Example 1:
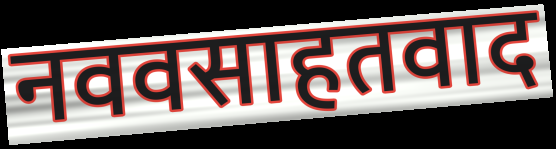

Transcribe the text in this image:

नववसाहतवाद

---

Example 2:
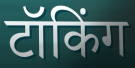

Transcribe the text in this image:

टॉकिंग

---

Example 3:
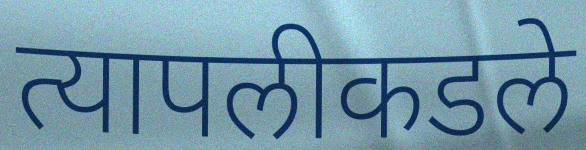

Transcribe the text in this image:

त्यापलीकडले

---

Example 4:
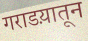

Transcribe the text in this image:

गराडय़ातून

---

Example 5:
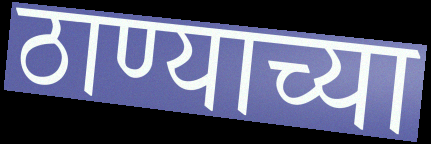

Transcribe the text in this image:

ठाण्याच्या